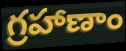
గ్రహాణాం